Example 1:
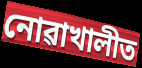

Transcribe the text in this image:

নোৱাখালীত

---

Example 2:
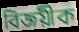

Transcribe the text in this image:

বিজয়ীক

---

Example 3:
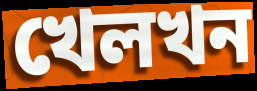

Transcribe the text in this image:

খেলখন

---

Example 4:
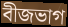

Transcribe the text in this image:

বীজভাগ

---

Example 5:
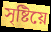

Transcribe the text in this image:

সৃষ্টিয়ে